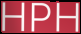
HPH